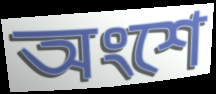
অংশে